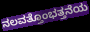
ನಲವತ್ತೊಂಭತ್ತನೆಯ